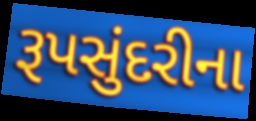
રૂપસુંદરીના